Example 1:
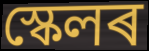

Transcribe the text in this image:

স্কেলৰ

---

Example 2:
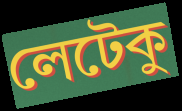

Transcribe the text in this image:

লেটেকু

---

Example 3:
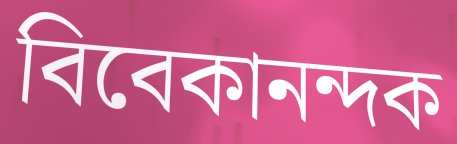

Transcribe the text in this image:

বিবেকানন্দক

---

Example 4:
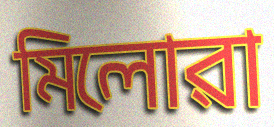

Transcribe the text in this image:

মিলোৱা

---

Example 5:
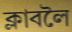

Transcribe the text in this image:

ক্লাবলৈ